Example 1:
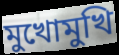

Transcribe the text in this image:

মুখোমুখি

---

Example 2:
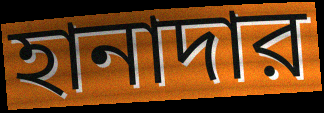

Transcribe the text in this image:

হানাদার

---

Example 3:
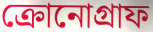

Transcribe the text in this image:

ক্রোনোগ্রাফ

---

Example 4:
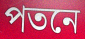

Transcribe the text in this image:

পতনে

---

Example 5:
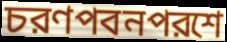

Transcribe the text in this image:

চরণপবনপরশে